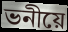
ভনীয়ে